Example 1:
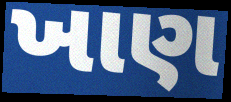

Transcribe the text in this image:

ખાણ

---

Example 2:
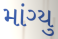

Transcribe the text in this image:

માંગ્યુ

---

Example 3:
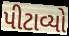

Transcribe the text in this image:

પીટાવ્યો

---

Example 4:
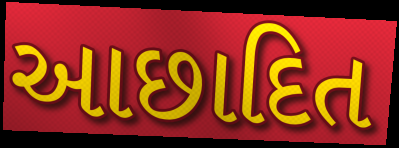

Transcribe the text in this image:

આછાદિત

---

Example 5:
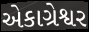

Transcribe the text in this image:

એકાગ્રેશ્વર